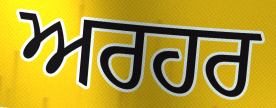
ਅਰਹਰ